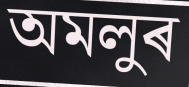
অমলুৰ